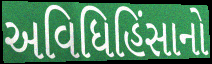
અવિધિહિંસાનો